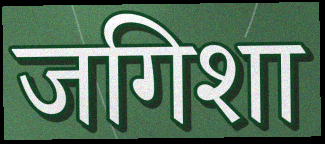
जगिशा